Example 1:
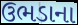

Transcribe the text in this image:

ઉભડાના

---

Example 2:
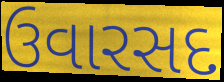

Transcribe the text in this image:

ઉવારસદ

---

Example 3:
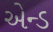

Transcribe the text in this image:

એન્ડ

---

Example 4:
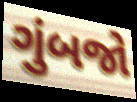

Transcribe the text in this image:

ગુંબજો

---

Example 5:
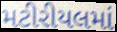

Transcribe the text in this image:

મટીરીયલમાં